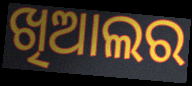
ଖିଆଲର